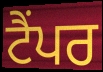
ਟੈਂਪਰ